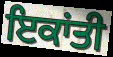
ਇਕਾਂਤੀ